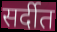
सर्दीत